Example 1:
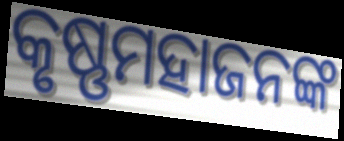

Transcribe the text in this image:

କୃଷ୍ଣମହାଜନଙ୍କ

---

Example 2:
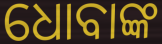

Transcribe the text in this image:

ଧୋବାଙ୍କ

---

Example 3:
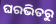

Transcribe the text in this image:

ଘରଭିତରୁ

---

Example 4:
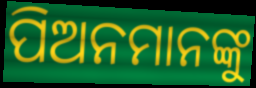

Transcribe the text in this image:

ପିଅନମାନଙ୍କୁ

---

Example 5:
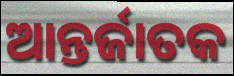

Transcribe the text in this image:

ଆନ୍ତର୍ଜାତକ